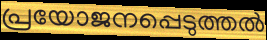
പ്രയോജനപ്പെടുത്തൽ